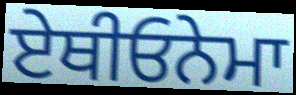
ਏਥੀਓਨੇਮਾ